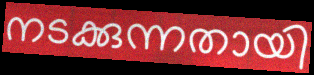
നടക്കുന്നതായി